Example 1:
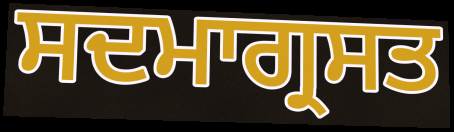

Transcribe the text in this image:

ਸਦਮਾਗ੍ਰਸਤ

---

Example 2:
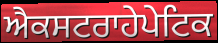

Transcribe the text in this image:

ਐਕਸਟਰਾਹੇਪੇਟਿਕ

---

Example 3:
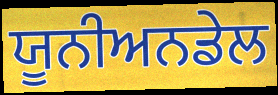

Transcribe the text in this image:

ਯੂਨੀਅਨਡੇਲ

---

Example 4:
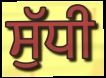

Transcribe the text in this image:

ਸੁੱਧੀ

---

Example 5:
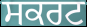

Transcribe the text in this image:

ਸਕਰਟ